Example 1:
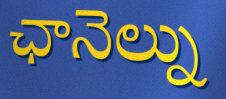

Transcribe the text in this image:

ఛానెల్ను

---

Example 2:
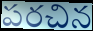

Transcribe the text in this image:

పరచిన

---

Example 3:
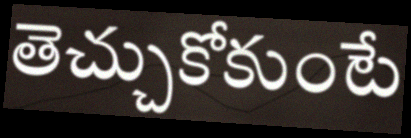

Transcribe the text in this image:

తెచ్చుకోకుంటే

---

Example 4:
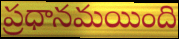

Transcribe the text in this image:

ప్రధానమయింది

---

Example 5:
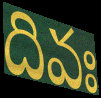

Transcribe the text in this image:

దివః